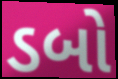
ડબો